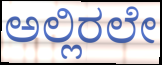
ಅಲ್ಲಿರಲೇ